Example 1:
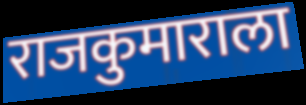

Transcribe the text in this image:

राजकुमाराला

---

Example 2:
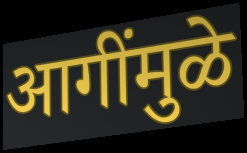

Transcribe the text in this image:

आगींमुळे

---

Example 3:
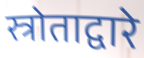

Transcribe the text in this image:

स्त्रोताद्वारे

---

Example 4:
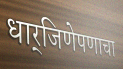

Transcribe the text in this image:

धार्जिणेपणाचा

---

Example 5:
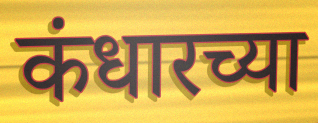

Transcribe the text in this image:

कंधारच्या